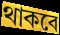
থাকবে